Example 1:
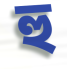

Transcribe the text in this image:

হু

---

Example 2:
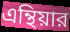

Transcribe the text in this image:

এন্থিয়ার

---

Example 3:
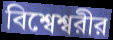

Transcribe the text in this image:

বিশ্বেশ্বরীর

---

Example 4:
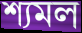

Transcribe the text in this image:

শ্যমল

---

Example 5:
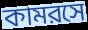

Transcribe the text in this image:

কামরসে